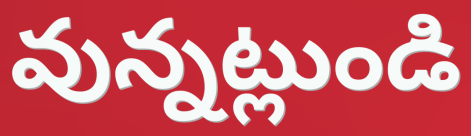
వున్నట్లుండి